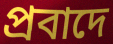
প্রবাদে